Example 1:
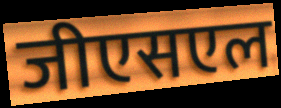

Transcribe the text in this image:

जीएसएल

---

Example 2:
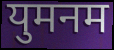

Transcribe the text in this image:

युमनम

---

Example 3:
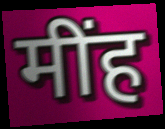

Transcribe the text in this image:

मींह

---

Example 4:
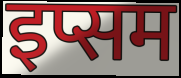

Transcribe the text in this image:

इप्सम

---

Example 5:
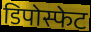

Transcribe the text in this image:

डिपोस्फेट